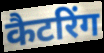
कैटरिंग